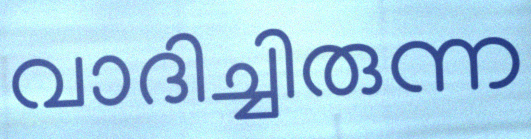
വാദിച്ചിരുന്ന